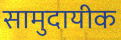
सामुदायीक